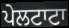
ਪੇਲਟਾਟਾ